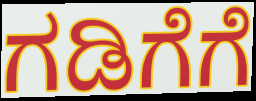
ಗಡಿಗೆಗೆ